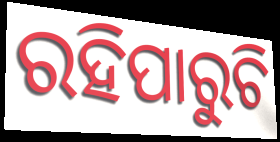
ରହିପାରୁଚି